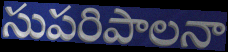
సుపరిపాలనా